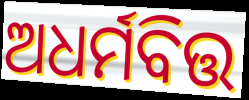
ଅଧର୍ମବିତ୍ତ